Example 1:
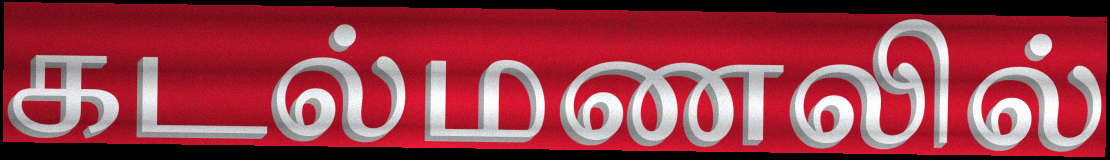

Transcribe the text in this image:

கடல்மணலில்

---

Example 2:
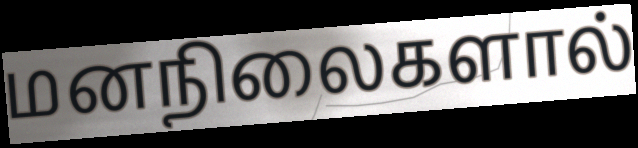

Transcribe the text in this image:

மனநிலைகளால்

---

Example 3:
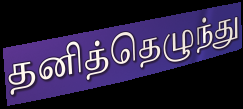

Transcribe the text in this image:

தனித்தெழுந்து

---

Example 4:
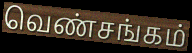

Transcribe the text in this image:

வெண்சங்கம்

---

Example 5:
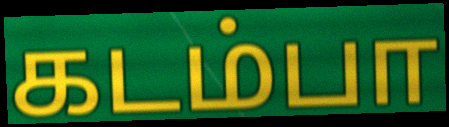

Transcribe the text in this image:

கடம்பா